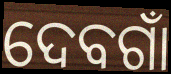
ଦେବଗାଁ